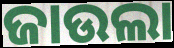
ଜାଉଲା